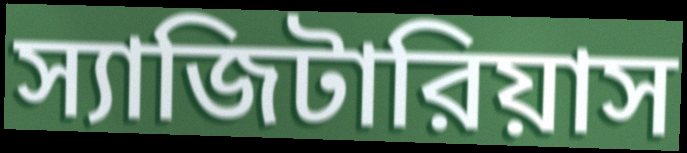
স্যাজিটারিয়াস